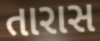
તારાસ